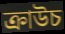
ক্রাউচ